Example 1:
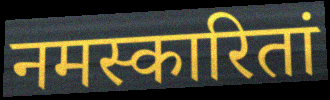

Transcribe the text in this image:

नमस्कारितां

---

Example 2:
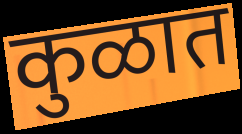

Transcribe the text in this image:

कुळात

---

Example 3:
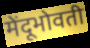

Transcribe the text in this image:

मेंदूभोवती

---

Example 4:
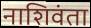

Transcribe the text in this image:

नाशिवंता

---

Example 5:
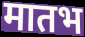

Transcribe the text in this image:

मातभ